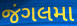
જંગલમા